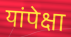
यांपेक्षा